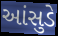
આંસુડે